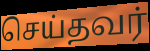
செய்தவர்